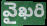
వైఖరి